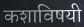
कशाविषयी